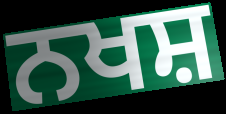
ਨਖਸ਼